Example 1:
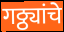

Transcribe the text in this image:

गठ्ठ्यांचे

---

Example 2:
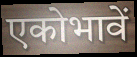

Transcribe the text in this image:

एकोभावें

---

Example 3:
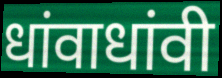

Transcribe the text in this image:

धांवाधांवी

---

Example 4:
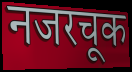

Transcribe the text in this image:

नजरचूक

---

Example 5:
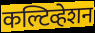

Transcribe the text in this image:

कल्टिव्हेशन